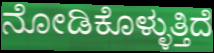
ನೋಡಿಕೊಳ್ಳುತ್ತಿದೆ